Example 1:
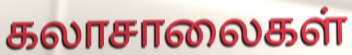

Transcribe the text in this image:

கலாசாலைகள்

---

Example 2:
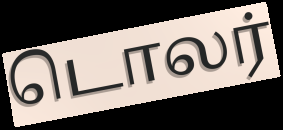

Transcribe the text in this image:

டொலர்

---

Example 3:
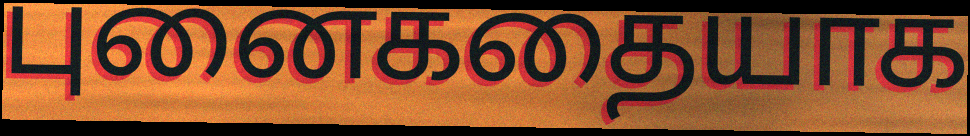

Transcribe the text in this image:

புனைகதையாக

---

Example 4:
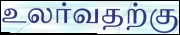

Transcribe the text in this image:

உலர்வதற்கு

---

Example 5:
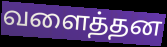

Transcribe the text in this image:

வளைத்தன